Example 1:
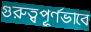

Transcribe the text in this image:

গুরুত্বপূর্ণভাবে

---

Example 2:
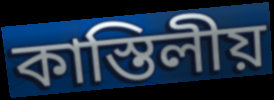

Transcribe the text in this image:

কাস্তিলীয়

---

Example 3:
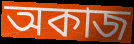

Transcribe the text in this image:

অকাজ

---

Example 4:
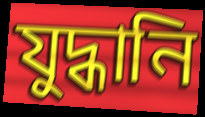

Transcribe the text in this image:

যুদ্ধানি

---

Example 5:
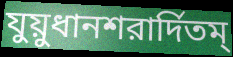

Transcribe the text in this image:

যুয়ুধানশরার্দিতম্